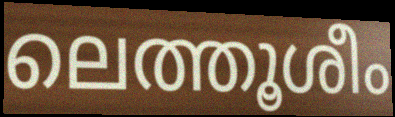
ലെത്തൂശീം